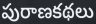
పురాణకథలు